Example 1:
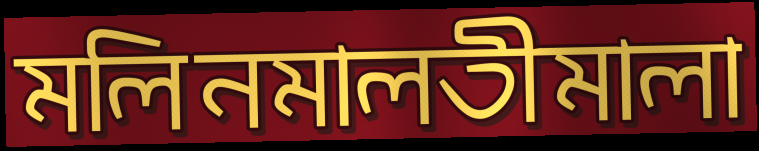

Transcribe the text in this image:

মলিনমালতীমালা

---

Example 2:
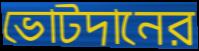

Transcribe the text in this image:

ভোটদানের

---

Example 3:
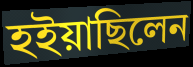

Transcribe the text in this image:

হইয়াছিলেন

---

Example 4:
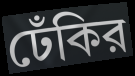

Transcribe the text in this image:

ঢেঁকির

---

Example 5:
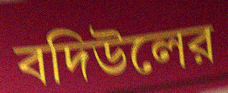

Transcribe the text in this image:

বদিউলের